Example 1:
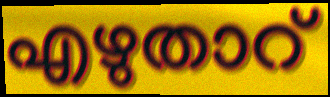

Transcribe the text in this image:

എഴുതാറ്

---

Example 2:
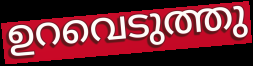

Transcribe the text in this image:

ഉറവെടുത്തു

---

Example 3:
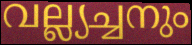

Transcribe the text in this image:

വല്ല്യച്ചനും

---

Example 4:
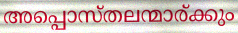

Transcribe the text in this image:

അപ്പൊസ്തലന്മാര്ക്കും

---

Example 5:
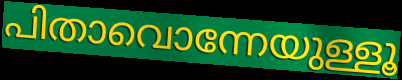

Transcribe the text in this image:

പിതാവൊന്നേയുള്ളൂ